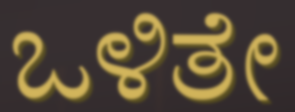
ಒಳಿತೇ